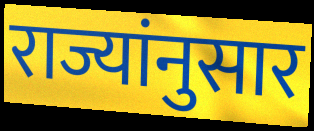
राज्यांनुसार